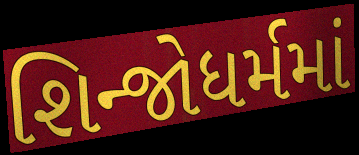
શિન્જોધર્મમાં